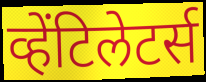
व्हेंटिलेटर्स